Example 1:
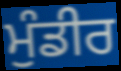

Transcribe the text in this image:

ਮੁੰਡੀਰ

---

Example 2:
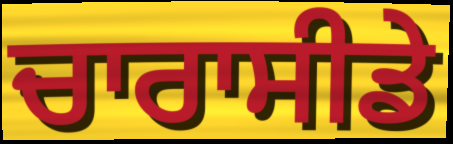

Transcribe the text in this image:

ਚਾਰਾਸੀਡੇ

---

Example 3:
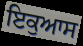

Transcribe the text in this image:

ਇਕੁਆਸ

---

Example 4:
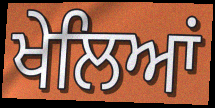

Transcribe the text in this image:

ਖੇਲਿਆਂ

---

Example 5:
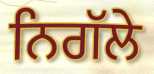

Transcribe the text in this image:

ਨਿਗੱਲੇ